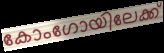
കോംഗോയിലേക്ക്